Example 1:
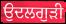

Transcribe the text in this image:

ਉਦਲਗੁੜੀ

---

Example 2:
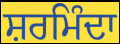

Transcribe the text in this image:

ਸ਼ਰਮਿੰਦਾ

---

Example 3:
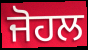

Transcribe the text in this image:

ਜੋਹਲ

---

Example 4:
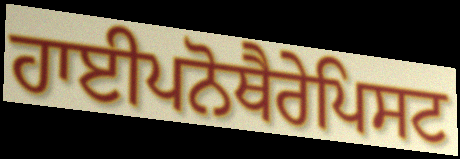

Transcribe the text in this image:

ਹਾਈਪਨੋਥੈਰੇਪਿਸਟ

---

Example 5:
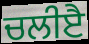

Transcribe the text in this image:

ਚਲੀੲੈ